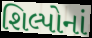
શિલ્પોનાં